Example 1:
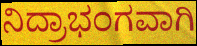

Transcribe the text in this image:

ನಿದ್ರಾಭಂಗವಾಗಿ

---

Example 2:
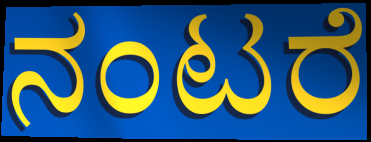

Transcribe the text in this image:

ನಂಟರೆ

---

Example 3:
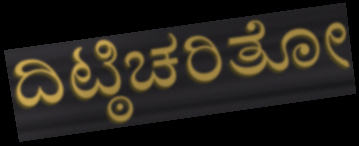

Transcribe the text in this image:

ದಿಟ್ಠಿಚರಿತೋ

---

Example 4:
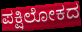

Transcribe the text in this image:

ಪಕ್ಷಿಲೋಕದ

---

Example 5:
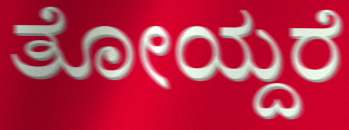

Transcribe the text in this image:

ತೋಯ್ದರೆ